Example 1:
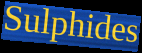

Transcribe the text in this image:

Sulphides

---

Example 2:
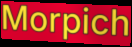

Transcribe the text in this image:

Morpich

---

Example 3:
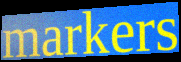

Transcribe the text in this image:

markers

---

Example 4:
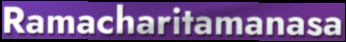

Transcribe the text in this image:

Ramacharitamanasa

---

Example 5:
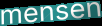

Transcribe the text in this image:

mensen